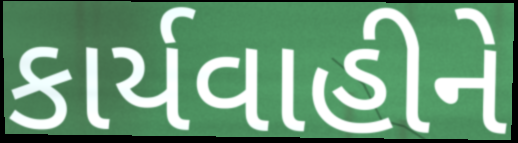
કાર્યવાહીને